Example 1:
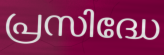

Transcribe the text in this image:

പ്രസിദ്ധേ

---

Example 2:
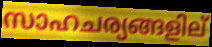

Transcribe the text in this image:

സാഹചര്യങ്ങളില്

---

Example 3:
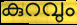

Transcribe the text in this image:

കുറവും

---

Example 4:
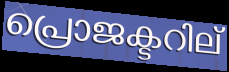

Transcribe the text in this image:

പ്രൊജക്ടറില്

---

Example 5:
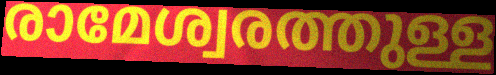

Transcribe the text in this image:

രാമേശ്വരത്തുള്ള